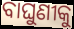
ବାଘୁଣୀକୁ